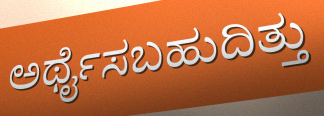
ಅರ್ಥೈಸಬಹುದಿತ್ತು